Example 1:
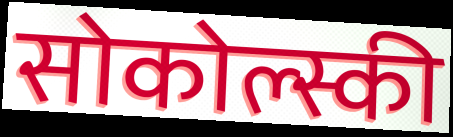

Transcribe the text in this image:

सोकोल्स्की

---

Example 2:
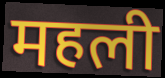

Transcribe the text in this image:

महली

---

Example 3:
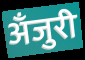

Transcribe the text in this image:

अँजुरी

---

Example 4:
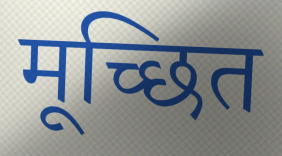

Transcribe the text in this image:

मूच्छित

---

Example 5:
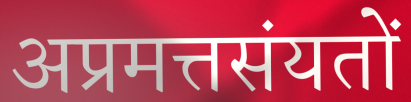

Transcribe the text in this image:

अप्रमत्तसंयतों